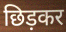
छिड़कर